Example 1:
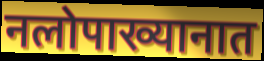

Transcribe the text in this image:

नलोपाख्यानात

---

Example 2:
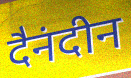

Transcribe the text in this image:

दैनंदीन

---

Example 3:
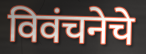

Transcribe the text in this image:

विवंचनेचे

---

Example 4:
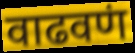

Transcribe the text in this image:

वाढवणं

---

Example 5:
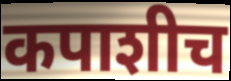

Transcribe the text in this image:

कपाशीच